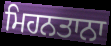
ਮਿਹਨਤਾਨਾ